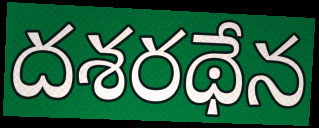
దశరథేన